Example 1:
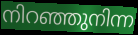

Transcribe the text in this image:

നിറഞ്ഞുനിന്ന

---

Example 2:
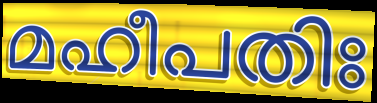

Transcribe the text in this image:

മഹീപതിഃ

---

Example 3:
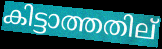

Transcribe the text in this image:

കിട്ടാത്തതില്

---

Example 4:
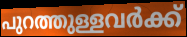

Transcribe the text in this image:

പുറത്തുള്ളവർക്ക്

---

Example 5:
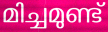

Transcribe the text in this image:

മിച്ചമുണ്ട്